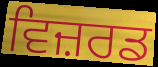
ਵਿਜ਼ਰਡ